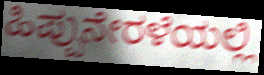
ಹಿಪ್ಪುನೇರಳೆಯಲ್ಲಿ